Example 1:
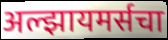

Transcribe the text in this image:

अल्झायमर्सचा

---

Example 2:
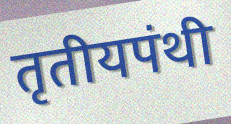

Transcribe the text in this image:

तृतीयपंथी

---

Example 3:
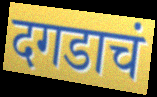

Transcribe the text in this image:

दगडाचं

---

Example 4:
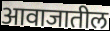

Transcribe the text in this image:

आवाजातील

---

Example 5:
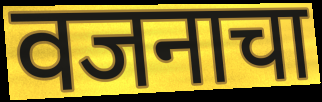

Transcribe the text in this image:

वजनाचा